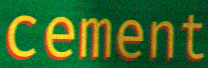
cement